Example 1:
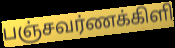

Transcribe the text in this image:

பஞ்சவர்ணக்கிளி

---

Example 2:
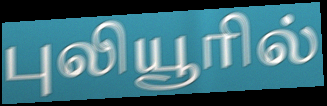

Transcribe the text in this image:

புலியூரில்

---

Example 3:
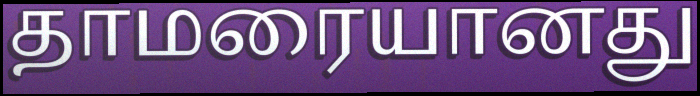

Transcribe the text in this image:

தாமரையானது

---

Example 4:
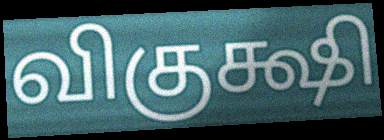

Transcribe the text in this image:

விகுக்ஷி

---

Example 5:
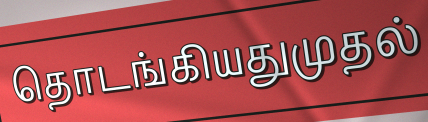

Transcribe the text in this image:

தொடங்கியதுமுதல்